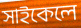
সাইকেলে